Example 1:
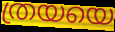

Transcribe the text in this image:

ത്രയയെ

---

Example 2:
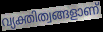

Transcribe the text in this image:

വ്യക്തിത്വങ്ങളാണ്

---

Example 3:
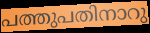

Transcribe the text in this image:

പത്തുപതിനാറു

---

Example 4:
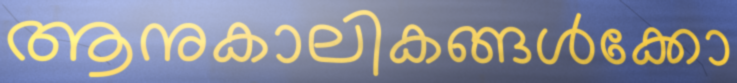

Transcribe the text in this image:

ആനുകാലികങ്ങൾക്കോ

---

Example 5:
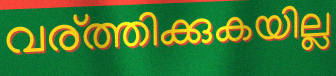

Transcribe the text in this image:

വര്ത്തിക്കുകയില്ല